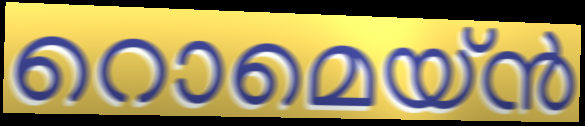
റൊമെയ്ൻ